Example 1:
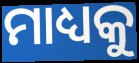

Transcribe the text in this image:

ମାଧ୍ୟକୁ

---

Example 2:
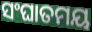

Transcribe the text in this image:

ସଂଘାତମୟ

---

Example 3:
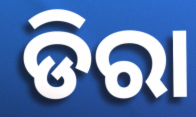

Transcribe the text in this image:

ଡିରା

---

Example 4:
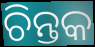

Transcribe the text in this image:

ଚିନ୍ତକ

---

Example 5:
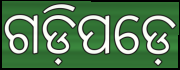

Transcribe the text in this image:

ଗଡ଼ିପଡ଼େ